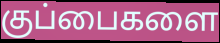
குப்பைகளை